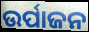
ଉର୍ପାଜନ